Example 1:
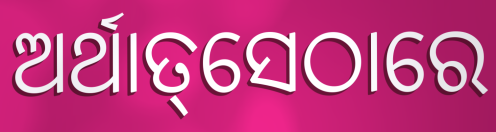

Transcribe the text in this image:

ଅର୍ଥାତ୍‌ସେଠାରେ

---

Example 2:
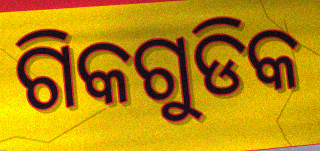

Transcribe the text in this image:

ଗିକଗୁଡିକ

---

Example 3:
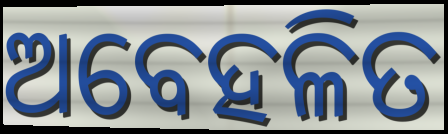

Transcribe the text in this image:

ଅବେହଳିତ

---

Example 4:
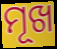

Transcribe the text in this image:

ମୂଖ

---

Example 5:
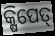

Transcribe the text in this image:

କ୍ଷିପେତ୍